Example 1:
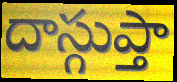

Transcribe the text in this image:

దాస్గుప్తా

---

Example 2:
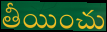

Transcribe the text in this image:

తీయించు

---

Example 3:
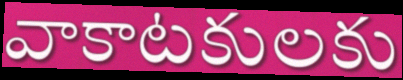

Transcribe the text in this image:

వాకాటకులకు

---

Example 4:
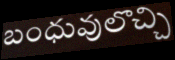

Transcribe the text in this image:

బంధువులొచ్చి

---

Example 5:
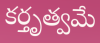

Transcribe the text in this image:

కర్తృత్వమే